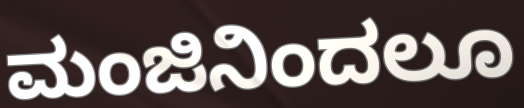
ಮಂಜಿನಿಂದಲೂ